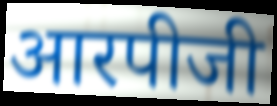
आरपीजी